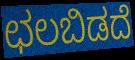
ಛಲಬಿಡದೆ